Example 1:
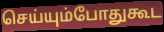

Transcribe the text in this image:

செய்யும்போதுகூட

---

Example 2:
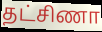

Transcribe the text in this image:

தட்சிணா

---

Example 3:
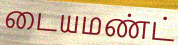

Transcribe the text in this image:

டையமண்ட்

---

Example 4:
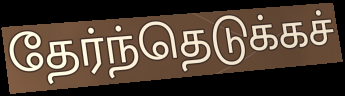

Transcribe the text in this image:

தேர்ந்தெடுக்கச்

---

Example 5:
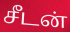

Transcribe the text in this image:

சீடன்